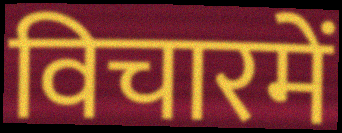
विचारमें